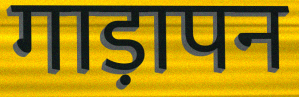
गाड़ापन